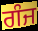
ਗੰਜ